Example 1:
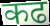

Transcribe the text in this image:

कढ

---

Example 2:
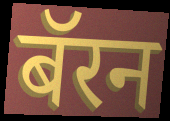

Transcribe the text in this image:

बॅरन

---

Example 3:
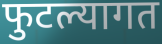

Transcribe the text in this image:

फुटल्यागत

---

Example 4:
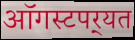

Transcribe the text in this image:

ऑगस्टपर्यत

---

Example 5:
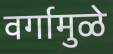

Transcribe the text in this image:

वर्गामुळे